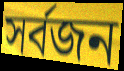
সর্বজন